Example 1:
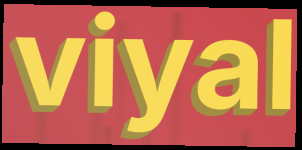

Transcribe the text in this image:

viyal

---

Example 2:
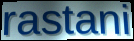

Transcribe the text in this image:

rastani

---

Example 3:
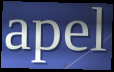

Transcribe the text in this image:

apel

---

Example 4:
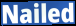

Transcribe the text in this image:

Nailed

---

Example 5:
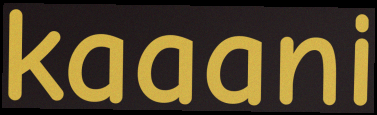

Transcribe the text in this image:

kaaani